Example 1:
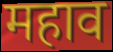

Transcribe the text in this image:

महाव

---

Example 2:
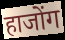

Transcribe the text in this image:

हाजोंग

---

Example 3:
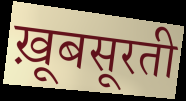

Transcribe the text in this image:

ख़ूबसूरती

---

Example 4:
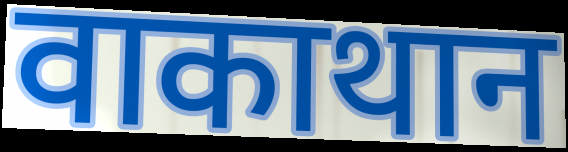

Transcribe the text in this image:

वाकाथान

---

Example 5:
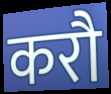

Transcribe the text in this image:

करौ